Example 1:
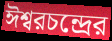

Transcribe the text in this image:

ঈশ্বরচন্দ্রের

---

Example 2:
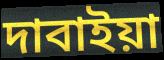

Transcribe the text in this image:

দাবাইয়া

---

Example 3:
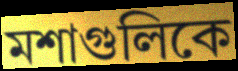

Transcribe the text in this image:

মশাগুলিকে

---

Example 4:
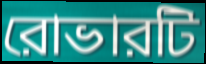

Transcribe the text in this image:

রোভারটি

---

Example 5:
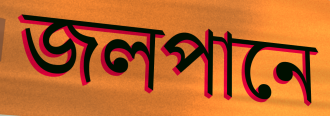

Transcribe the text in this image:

জলপানে